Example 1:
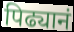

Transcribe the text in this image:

पिढ्यानं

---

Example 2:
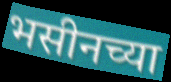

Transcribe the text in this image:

भसीनच्या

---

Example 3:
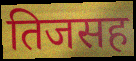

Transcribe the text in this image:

तिजसह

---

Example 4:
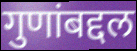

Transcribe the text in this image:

गुणांबद्दल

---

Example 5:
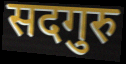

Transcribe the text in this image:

सदगुरु